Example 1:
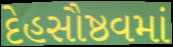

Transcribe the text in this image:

દેહસૌષ્ઠવમાં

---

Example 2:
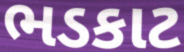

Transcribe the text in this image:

ભડકાટ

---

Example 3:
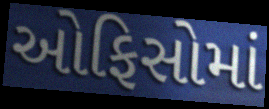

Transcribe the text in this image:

ઓફિસોમાં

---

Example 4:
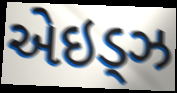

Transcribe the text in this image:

એઇડ્ઝ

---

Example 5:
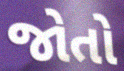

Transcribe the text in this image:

જોતો